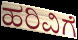
ಹರಿವಿಗೆ